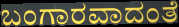
ಬಂಗಾರವಾದಂತೆ